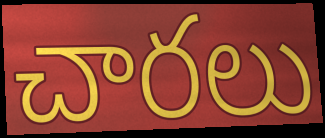
చారలు